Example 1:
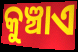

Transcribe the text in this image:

କୁଞ୍ଚାଏ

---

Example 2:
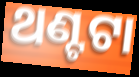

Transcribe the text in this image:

ଥଣ୍ଟଟା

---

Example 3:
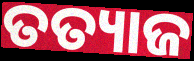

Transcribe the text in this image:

ତତ୍ୟାଜ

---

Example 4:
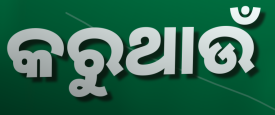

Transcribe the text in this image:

କରୁଥାଉଁ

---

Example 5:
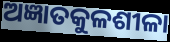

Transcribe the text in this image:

ଅଜ୍ଞାତକୁଳଶୀଳା